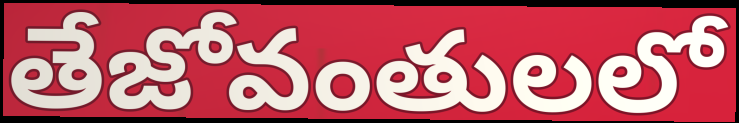
తేజోవంతులలో